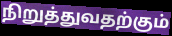
நிறுத்துவதற்கும்